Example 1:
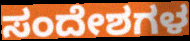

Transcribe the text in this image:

ಸಂದೇಶಗಳ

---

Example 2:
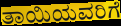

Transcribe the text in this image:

ತಾಯಿಯವರಿಗೆ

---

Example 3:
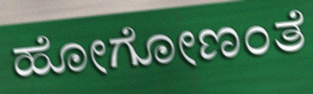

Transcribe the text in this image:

ಹೋಗೋಣಂತೆ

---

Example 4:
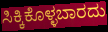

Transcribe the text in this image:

ಸಿಕ್ಕಿಕೊಳ್ಳಬಾರದು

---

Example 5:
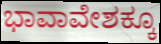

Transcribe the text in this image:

ಭಾವಾವೇಶಕ್ಕೂ